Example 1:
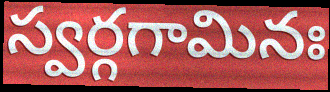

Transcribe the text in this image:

స్వర్గగామినః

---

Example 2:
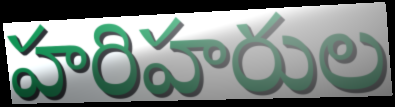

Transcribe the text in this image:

హరిహరుల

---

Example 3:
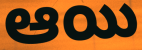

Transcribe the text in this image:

ఆయి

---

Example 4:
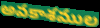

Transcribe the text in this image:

అవకాశముల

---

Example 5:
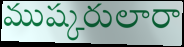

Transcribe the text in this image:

ముష్కరులారా